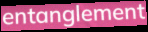
entanglement